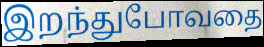
இறந்துபோவதை